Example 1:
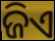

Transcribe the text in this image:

ଜିଏ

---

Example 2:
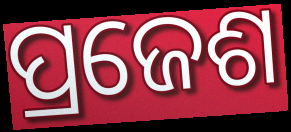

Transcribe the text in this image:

ପ୍ରଜେଶ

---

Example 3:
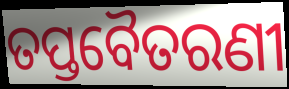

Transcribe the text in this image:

ତପ୍ତବୈତରଣୀ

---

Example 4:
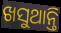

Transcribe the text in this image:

ଖସୁଥାନ୍ତି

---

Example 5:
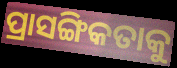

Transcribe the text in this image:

ପ୍ରାସଙ୍ଗିକତାକୁ